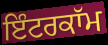
ਇੰਟਰਕਾੱਮ